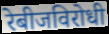
रेबीजविरोधी